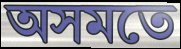
অসমতে